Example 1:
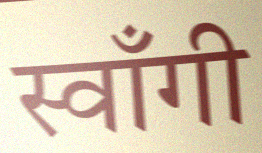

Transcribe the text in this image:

स्वाँगी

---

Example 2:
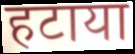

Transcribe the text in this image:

हटाया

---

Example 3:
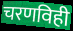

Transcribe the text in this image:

चरणविही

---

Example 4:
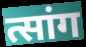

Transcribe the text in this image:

त्सांग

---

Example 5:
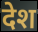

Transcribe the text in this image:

देश